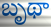
బృథా